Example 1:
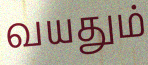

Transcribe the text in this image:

வயதும்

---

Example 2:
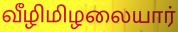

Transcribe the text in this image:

வீழிமிழலையார்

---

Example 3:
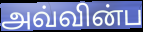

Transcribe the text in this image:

அவ்வின்ப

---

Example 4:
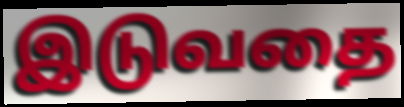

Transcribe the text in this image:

இடுவதை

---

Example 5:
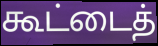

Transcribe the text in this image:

கூட்டைத்